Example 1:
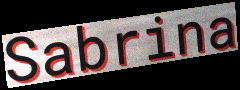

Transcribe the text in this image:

Sabrina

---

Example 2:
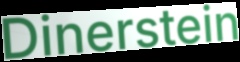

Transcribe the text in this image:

Dinerstein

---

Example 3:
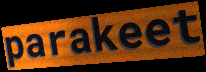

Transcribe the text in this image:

parakeet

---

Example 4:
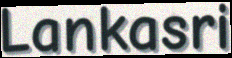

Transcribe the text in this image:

Lankasri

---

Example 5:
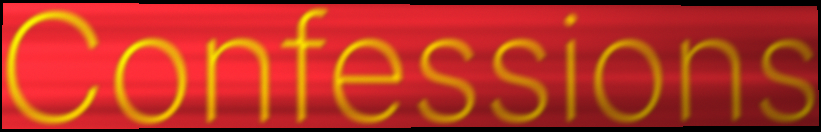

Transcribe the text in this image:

Confessions